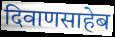
दिवाणसाहेब